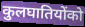
कुलघातियोंको